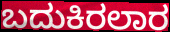
ಬದುಕಿರಲಾರ